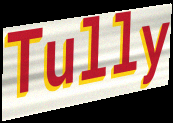
Tully